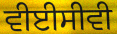
ਵੀਈਸੀਵੀ